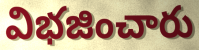
విభజించారు